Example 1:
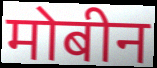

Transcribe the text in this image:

मोबीन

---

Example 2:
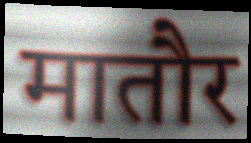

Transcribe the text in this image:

मातौर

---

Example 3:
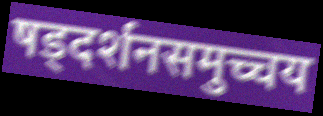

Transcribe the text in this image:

षड्दर्शनसमुच्चय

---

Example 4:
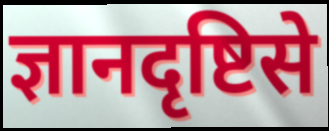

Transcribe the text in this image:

ज्ञानदृष्टिसे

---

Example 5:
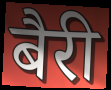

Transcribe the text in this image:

बैरी